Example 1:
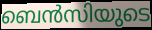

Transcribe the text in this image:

ബെൻസിയുടെ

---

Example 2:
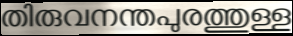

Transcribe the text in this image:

തിരുവനന്തപുരത്തുള്ള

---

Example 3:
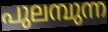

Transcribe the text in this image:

പുലമ്പുന്ന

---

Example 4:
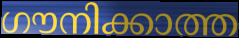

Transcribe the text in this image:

ഗൗനിക്കാത്ത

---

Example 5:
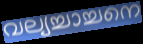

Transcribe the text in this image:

വല്യച്ചാച്ചനെ